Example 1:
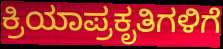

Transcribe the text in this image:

ಕ್ರಿಯಾಪ್ರಕೃತಿಗಳಿಗೆ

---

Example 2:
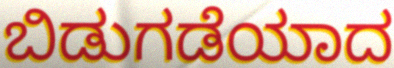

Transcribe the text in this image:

ಬಿಡುಗಡೆಯಾದ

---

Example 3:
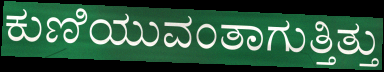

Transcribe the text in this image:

ಕುಣಿಯುವಂತಾಗುತ್ತಿತ್ತು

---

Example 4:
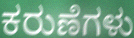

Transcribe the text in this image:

ಕರುಣೆಗಳು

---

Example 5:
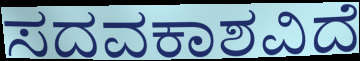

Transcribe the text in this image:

ಸದವಕಾಶವಿದೆ